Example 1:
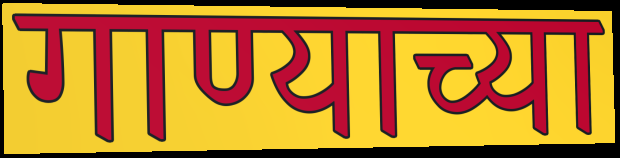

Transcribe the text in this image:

गाण्याच्या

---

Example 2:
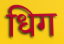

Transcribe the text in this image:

धिग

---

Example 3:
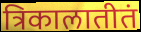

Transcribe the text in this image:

त्रिकालातीतं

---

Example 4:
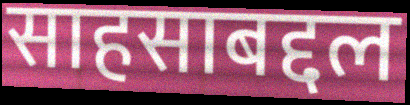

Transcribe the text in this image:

साहसाबद्दल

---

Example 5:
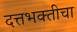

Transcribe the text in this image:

दत्तभक्तीचा